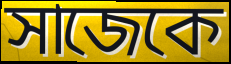
সাজেকে